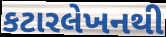
કટારલેખનથી